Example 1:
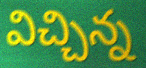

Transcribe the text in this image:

విచ్చిన్న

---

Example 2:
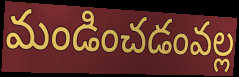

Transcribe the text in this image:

మండించడంవల్ల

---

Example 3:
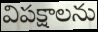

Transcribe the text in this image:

విపక్షాలను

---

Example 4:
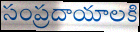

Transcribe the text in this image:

సంప్రదాయాలకి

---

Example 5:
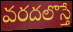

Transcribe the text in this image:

వరదలొస్తే